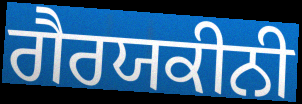
ਗੈਰਯਕੀਨੀ